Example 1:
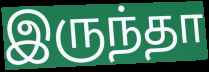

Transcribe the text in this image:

இருந்தா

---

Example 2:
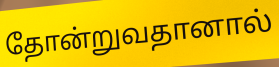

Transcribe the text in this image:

தோன்றுவதானால்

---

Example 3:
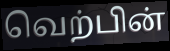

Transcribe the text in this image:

வெற்பின்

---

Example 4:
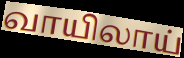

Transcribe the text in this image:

வாயிலாய்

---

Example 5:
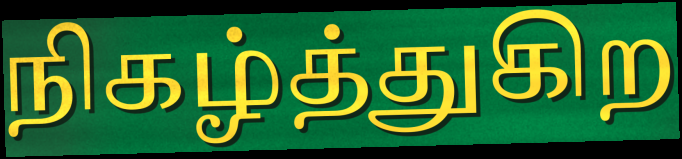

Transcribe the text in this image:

நிகழ்த்துகிற